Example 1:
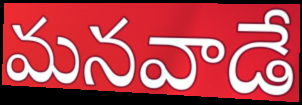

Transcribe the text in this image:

మనవాడే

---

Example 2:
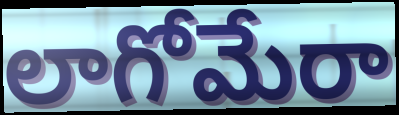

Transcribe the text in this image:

లాగోమేరా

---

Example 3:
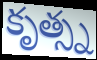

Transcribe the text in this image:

కృత్స్న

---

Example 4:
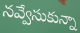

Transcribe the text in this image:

నవ్వేసుకున్నా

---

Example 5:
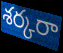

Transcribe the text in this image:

శర్కరా